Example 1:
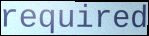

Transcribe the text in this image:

required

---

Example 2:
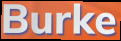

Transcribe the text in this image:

Burke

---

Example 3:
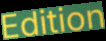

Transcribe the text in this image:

Edition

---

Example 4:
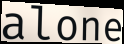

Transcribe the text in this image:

alone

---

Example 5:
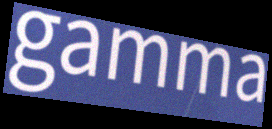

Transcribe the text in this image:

gamma